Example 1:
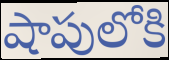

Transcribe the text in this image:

షాపులోకి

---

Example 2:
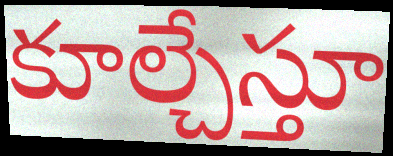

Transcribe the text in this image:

కూల్చేస్తూ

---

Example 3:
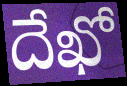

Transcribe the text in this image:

దేఖో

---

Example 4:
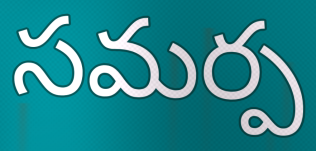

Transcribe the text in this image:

సమర్ప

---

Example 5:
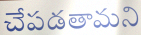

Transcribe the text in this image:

చేపడతామని